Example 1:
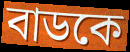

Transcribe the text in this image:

বাডকে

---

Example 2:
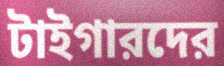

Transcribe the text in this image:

টাইগারদের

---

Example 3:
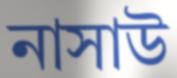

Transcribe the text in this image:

নাসাউ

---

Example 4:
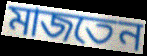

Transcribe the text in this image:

মাজতেন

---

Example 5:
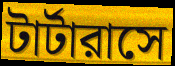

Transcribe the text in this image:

টার্টারাসে